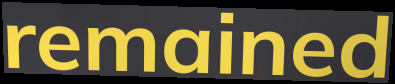
remained